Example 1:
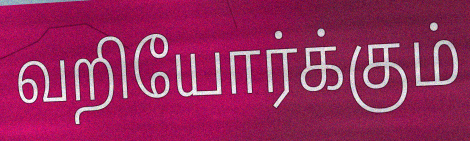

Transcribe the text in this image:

வறியோர்க்கும்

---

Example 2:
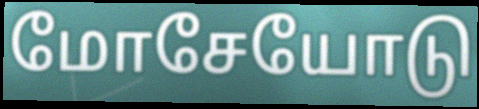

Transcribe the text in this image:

மோசேயோடு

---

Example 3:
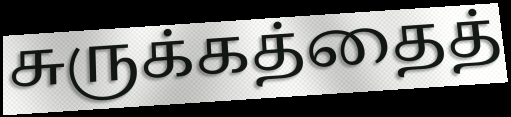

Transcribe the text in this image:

சுருக்கத்தைத்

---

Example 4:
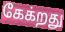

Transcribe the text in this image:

கேக்றது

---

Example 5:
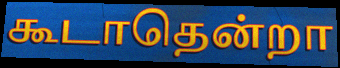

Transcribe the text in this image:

கூடாதென்றா